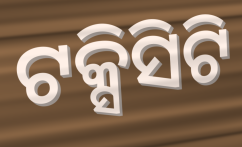
ଟକ୍ସିସିଟି